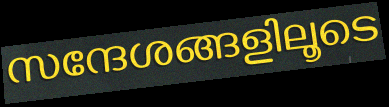
സന്ദേശങ്ങളിലൂടെ